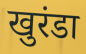
खुरंडा